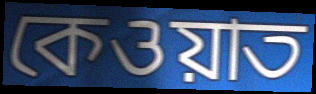
কেওয়াত